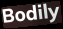
Bodily